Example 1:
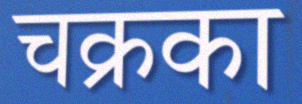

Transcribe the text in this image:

चक्रका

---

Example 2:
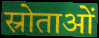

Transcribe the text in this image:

स्रोताओं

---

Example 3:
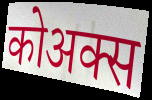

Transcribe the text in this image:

कोअक्स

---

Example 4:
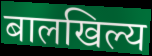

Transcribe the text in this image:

बालखिल्य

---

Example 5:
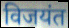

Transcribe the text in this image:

विजयंत